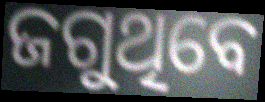
ଜଗୁଥିବେ